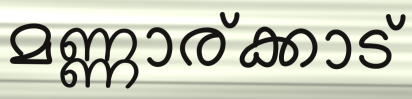
മണ്ണാര്ക്കാട്